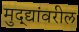
मुद्द्यांवरील